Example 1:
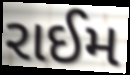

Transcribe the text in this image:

રાઈમ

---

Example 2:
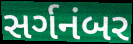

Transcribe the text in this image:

સર્ગનંબર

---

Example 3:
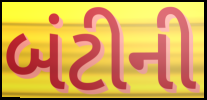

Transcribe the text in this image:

બંટીની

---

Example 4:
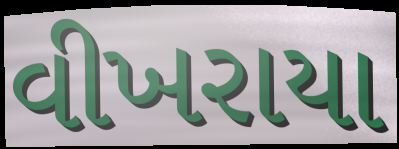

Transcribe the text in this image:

વીખરાયા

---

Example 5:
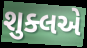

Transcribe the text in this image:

શુક્લએ